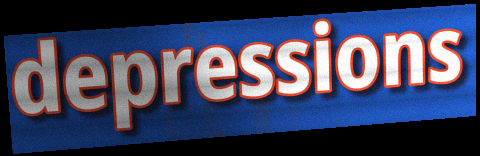
depressions